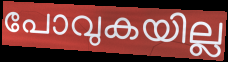
പോവുകയില്ല